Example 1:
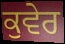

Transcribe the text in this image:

ਕੁਵੇਰ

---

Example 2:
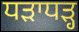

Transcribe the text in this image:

ਧੜਾਧੜ੍ਹ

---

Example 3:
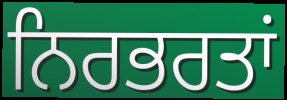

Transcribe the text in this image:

ਨਿਰਭਰਤਾਂ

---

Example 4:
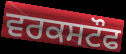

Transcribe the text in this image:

ਵਰਕਸਟੌਫ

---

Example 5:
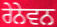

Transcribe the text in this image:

ਰੇਨੇਵਨ